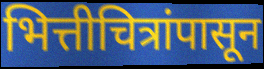
भित्तीचित्रांपासून